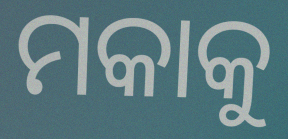
ମକାକୁ